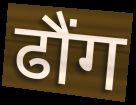
ढौंग